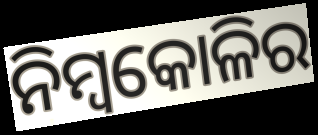
ନିମ୍ବକୋଳିର